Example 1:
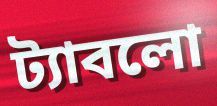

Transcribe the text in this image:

ট্যাবলো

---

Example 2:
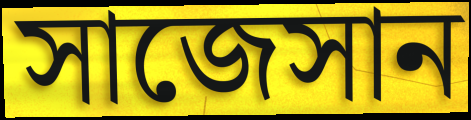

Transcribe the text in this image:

সাজেসান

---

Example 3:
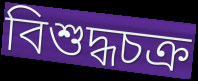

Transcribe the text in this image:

বিশুদ্ধচক্র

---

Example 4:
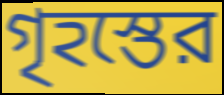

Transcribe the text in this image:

গৃহস্তের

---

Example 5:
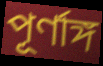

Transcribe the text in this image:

পূর্ণাঙ্গ